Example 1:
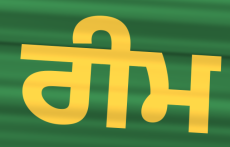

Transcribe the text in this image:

ਰੀਮ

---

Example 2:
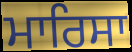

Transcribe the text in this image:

ਮਾਰਿਸਾ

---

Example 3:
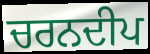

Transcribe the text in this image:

ਚਰਨਦੀਪ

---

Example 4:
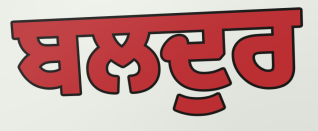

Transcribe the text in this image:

ਬਲਦੁਰ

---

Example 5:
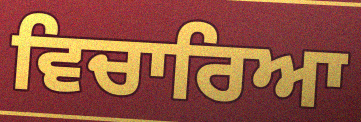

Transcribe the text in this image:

ਵਿਚਾਰਿਆ